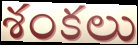
శంకలు